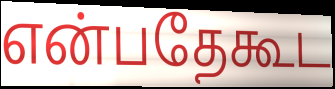
என்பதேகூட